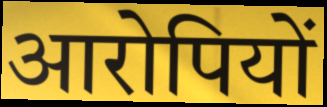
आरोपियों